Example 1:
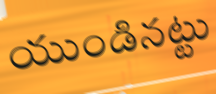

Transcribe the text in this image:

యుండినట్టు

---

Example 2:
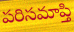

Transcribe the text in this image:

పరిసమాప్తి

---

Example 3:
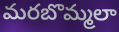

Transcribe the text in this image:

మరబొమ్మలా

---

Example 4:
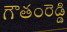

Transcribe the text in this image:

గౌతంరెడ్డి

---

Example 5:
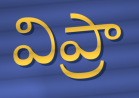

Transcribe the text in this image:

విప్రా